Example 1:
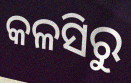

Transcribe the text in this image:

କଳସିରୁ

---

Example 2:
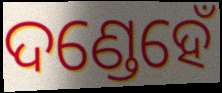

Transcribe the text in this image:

ଦଣ୍ଡେହେଁ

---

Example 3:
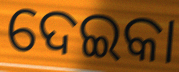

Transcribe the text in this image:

ଦେଇକା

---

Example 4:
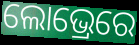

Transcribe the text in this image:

ଲୋଭ୍ରେରେ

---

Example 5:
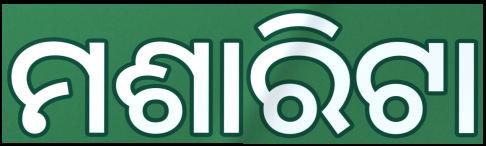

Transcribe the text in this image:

ମଶାରିଟା